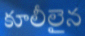
కూలీలైన